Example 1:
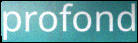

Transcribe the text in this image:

profond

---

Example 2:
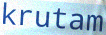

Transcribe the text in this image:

krutam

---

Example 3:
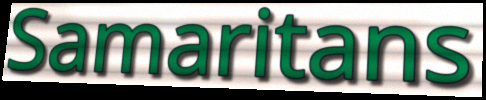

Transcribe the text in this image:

Samaritans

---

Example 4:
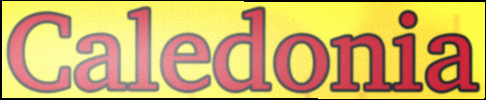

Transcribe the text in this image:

Caledonia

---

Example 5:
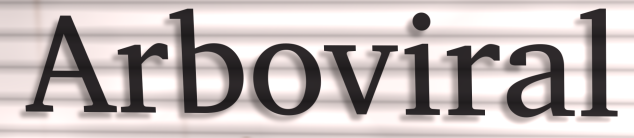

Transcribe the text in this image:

Arboviral